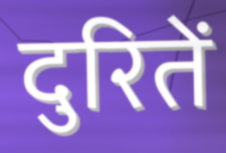
दुरितें